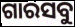
ଗାରସବୁ